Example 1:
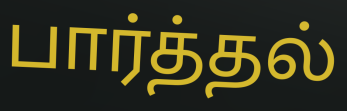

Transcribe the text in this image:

பார்த்தல்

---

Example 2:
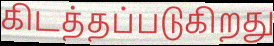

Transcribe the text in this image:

கிடத்தப்படுகிறது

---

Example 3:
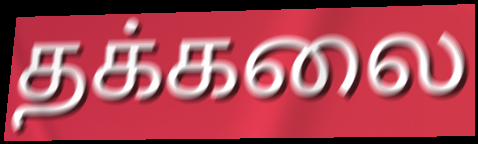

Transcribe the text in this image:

தக்கலை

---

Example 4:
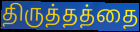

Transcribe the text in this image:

திருத்தத்தை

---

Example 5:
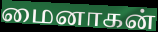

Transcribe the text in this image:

மைனாகன்